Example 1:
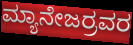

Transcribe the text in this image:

ಮ್ಯಾನೇಜರ್ರವರ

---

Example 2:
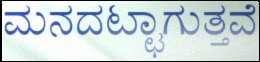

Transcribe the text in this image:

ಮನದಟ್ಟಾಗುತ್ತವೆ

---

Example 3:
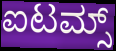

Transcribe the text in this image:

ಐಟಮ್ಸ್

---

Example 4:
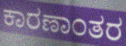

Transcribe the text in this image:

ಕಾರಣಾಂತರ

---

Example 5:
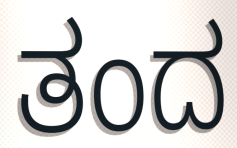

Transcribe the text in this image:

ತಂದ